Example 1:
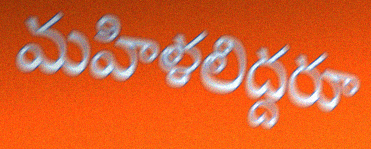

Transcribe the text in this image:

మహిళలిద్దరూ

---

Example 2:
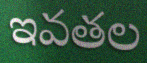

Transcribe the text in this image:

ఇవతల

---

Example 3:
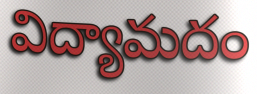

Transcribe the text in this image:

విద్యామదం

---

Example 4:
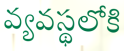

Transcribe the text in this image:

వ్యవస్థలోకి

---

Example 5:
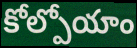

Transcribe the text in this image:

కోల్పోయాం